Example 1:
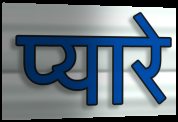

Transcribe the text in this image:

प्यारे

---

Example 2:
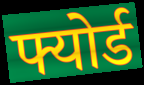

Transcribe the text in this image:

फ्योर्ड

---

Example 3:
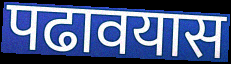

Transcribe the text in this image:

पढावयास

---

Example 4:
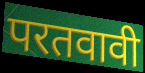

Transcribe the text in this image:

परतवावी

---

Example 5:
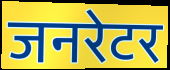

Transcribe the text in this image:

जनरेटर